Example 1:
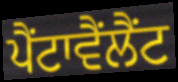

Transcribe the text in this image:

ਪੈਂਟਾਵੈਂਲੈਂਟ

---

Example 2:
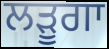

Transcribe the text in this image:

ਲੜੂਗਾ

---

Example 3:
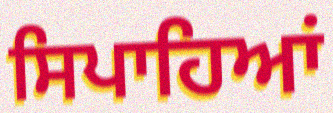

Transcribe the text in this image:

ਸਿਪਾਹਿਆਂ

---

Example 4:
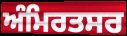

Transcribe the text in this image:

ਅੰਮਿਰਤਸਰ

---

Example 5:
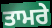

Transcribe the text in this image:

ਤਾਮਰੇ